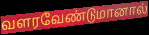
வளரவேண்டுமானால்